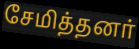
சேமித்தனர்